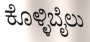
ಕೊಳ್ಳಿಬೈಲು